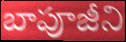
బాపూజీని